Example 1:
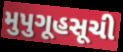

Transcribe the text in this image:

મુપુગૂહસૂચી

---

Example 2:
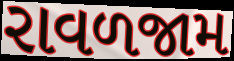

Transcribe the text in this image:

રાવળજામ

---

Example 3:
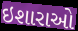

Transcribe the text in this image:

ઇશારાઓ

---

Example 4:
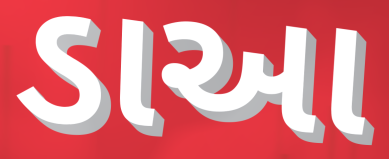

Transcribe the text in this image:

ડાઆ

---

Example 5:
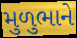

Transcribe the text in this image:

મુળુભાને